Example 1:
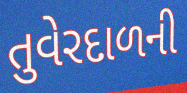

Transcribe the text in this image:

તુવેરદાળની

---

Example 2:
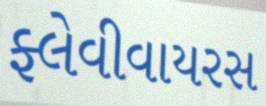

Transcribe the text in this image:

ફ્લેવીવાયરસ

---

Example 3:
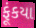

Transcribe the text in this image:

ફૂંકયા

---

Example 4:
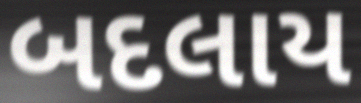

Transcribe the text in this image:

બદલાય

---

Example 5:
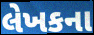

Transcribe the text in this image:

લેખકના